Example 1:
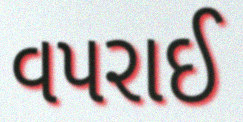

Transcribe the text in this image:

વપરાઈ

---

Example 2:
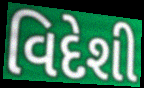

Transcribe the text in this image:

વિદેશી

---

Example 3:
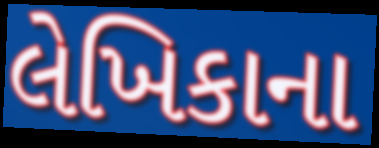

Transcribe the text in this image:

લેખિકાના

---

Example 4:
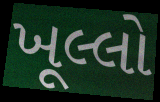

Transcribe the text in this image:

ખૂલ્લો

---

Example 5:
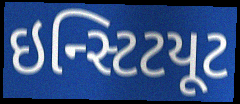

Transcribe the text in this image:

ઇન્સ્ટિટયૂટ